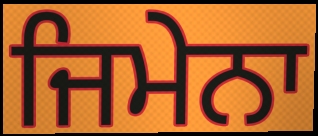
ਜਿਮੇਨਾ